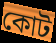
কোট